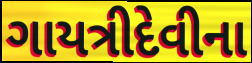
ગાયત્રીદેવીના